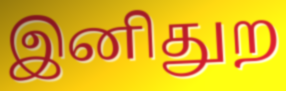
இனிதுற